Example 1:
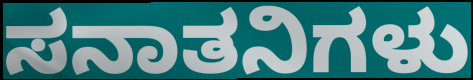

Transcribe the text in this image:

ಸನಾತನಿಗಳು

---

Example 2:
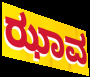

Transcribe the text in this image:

ಝಾವ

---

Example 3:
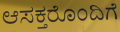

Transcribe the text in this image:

ಆಸಕ್ತರೊಂದಿಗೆ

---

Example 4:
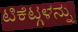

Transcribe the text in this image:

ಟಿಕೆಟ್ಗಳನ್ನು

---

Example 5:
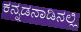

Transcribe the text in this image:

ಕನ್ನಡನಾಡಿನಲ್ಲಿ